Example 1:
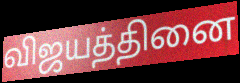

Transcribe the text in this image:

விஜயத்தினை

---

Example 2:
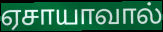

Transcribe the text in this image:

ஏசாயாவால்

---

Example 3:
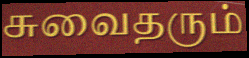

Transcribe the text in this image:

சுவைதரும்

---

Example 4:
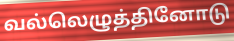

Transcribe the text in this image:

வல்லெழுத்தினோடு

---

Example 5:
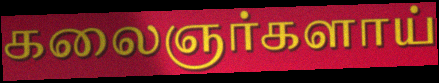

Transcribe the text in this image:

கலைஞர்களாய்